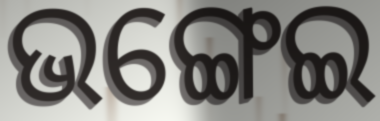
ଭଙ୍ଗେଇ